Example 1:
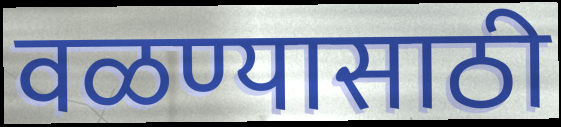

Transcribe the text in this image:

वळण्यासाठी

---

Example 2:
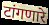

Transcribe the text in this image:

टांगणारे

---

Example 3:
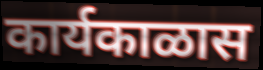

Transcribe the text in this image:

कार्यकाळास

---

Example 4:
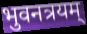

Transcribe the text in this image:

भुवनत्रयम्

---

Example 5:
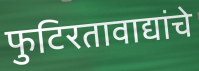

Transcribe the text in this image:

फुटिरतावाद्यांचे